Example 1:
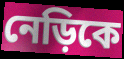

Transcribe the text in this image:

নেড়িকে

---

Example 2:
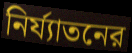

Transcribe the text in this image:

নির্য্যাতনের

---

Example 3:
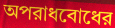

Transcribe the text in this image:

অপরাধবোধের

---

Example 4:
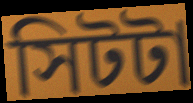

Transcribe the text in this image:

সিটটা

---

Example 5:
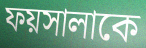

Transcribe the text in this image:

ফয়সালাকে